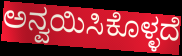
ಅನ್ವಯಿಸಿಕೊಳ್ಳದೆ